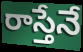
రాస్తేనే